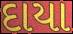
દાયા